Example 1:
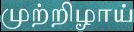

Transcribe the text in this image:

முற்றிழாய்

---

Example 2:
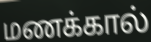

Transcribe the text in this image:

மணக்கால்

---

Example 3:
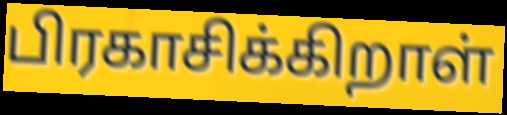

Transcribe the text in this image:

பிரகாசிக்கிறாள்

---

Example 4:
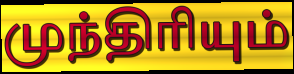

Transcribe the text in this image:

முந்திரியும்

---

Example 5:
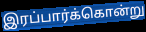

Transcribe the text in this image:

இரப்பார்க்கொன்று